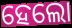
ହେଲୋ